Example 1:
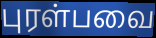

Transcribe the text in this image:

புரள்பவை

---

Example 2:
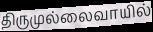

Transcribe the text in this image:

திருமுல்லைவாயில்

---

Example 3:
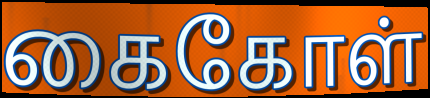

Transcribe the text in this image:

கைகோள்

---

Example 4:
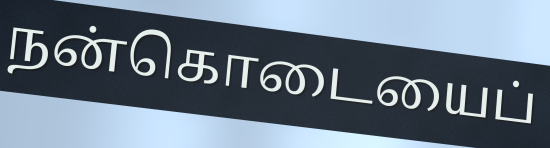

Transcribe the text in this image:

நன்கொடையைப்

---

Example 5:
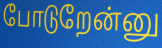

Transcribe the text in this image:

போடுறேன்னு